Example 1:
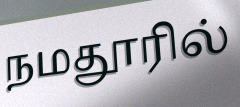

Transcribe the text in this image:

நமதூரில்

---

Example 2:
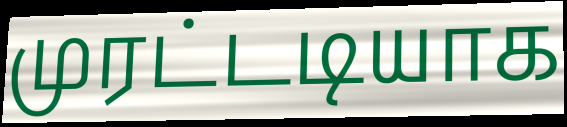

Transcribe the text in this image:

முரட்டடியாக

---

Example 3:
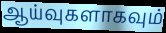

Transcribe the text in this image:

ஆய்வுகளாகவும்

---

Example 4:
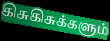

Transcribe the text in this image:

கிசுகிசுக்களும்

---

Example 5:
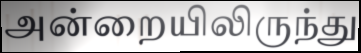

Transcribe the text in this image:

அன்றையிலிருந்து